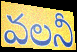
వలనీ